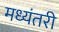
मध्यंतरी